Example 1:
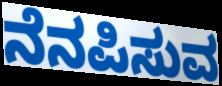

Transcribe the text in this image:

ನೆನಪಿಸುವ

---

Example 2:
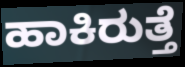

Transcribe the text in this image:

ಹಾಕಿರುತ್ತೆ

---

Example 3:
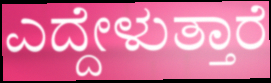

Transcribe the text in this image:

ಎದ್ದೇಳುತ್ತಾರೆ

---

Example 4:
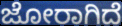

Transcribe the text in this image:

ಜೋರಾಗಿದೆ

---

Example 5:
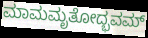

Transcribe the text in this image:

ಮಾಮಮೃತೋದ್ಭವಮ್